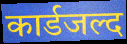
कार्डजल्द